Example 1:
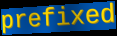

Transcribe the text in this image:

prefixed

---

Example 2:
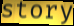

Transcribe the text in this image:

story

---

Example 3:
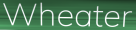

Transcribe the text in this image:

Wheater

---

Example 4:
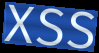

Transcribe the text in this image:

XSS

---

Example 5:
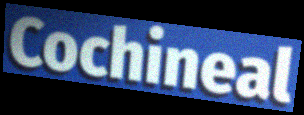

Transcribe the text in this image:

Cochineal